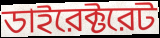
ডাইরেক্টরেট